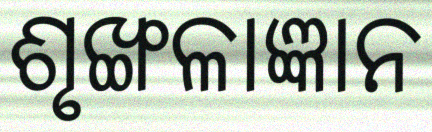
ଶୃଙ୍ଖଳାଜ୍ଞାନ